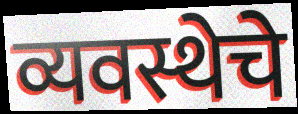
व्यवस्थेचे